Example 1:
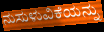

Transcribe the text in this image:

ನುಸುಳುವಿಕೆಯನ್ನು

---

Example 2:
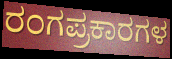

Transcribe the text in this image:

ರಂಗಪ್ರಕಾರಗಳ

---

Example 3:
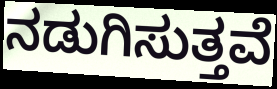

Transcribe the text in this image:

ನಡುಗಿಸುತ್ತವೆ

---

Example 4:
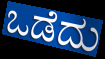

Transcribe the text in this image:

ಒಡೆದು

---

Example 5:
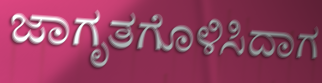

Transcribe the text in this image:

ಜಾಗೃತಗೊಳಿಸಿದಾಗ